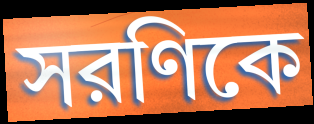
সরণিকে